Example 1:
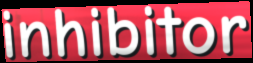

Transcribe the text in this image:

inhibitor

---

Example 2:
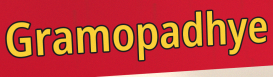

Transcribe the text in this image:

Gramopadhye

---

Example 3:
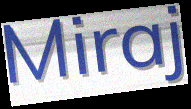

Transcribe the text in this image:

Miraj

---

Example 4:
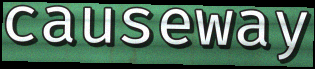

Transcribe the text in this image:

causeway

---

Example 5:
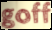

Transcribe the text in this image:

goff